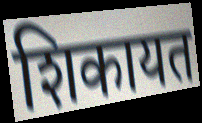
शिकायत